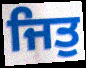
ਜਿਤੁ